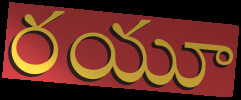
రయూ